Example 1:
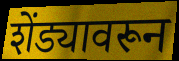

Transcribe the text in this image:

शेंड्यावरून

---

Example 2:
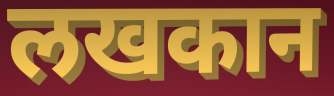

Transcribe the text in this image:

लखकान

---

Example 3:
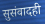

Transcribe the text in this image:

सुसंवादही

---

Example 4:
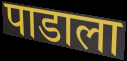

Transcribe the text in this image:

पाडाला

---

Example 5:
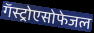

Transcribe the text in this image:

गॅस्ट्रोएसोफेजल